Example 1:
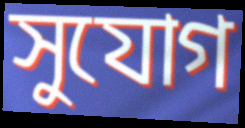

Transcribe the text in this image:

সুযোগ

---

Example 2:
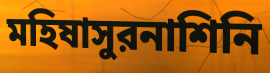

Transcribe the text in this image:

মহিষাসুরনাশিনি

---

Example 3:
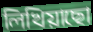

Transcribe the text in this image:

লিখিয়াছো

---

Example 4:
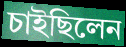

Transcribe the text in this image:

চাইছিলেন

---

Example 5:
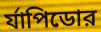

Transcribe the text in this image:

র্যাপিডোর